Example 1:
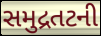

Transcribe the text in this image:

સમુદ્રતટની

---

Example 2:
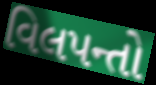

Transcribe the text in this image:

વિલપન્તો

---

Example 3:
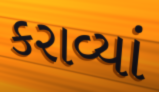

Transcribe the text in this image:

કરાવ્યાં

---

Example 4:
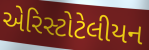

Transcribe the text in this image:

એરિસ્ટોટેલીયન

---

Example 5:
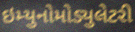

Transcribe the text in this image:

ઇમ્યુનોમોડ્યુલેટરી